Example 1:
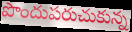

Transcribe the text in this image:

పొందుపరుచుకున్న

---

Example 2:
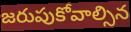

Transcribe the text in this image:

జరుపుకోవాల్సిన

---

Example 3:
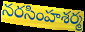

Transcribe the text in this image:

నరసింహశర్మ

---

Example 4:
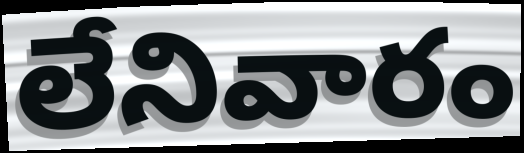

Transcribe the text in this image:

లేనివారం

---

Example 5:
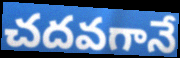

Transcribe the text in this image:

చదవగానే